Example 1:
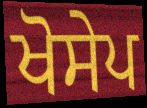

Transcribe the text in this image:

ਖੋਸੇਪ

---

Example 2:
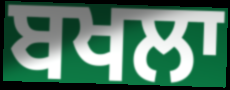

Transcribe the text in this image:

ਬਖਲਾ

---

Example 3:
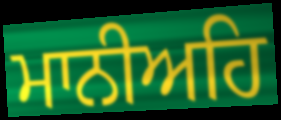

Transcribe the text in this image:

ਮਾਨੀਅਹਿ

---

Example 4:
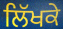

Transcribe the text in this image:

ਲਿੱਖਕੇ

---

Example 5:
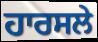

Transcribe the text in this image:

ਹਾਰਸਲੇ